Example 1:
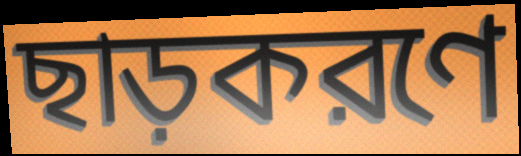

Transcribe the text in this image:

ছাড়করণে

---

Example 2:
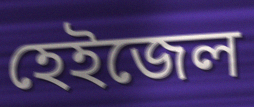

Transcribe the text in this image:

হেইজেল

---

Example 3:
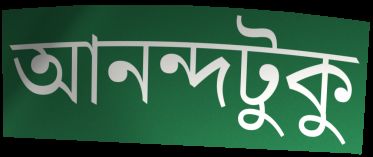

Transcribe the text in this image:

আনন্দটুকু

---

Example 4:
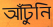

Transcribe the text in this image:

আঁটুনি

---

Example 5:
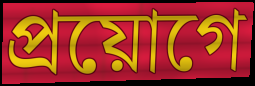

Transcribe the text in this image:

প্রয়োগে